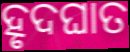
ହୃଦଘାତ